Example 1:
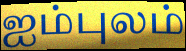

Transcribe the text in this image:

ஐம்புலம்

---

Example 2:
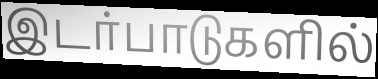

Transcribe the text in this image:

இடர்பாடுகளில்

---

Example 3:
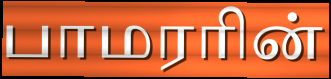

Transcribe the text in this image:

பாமரரின்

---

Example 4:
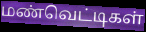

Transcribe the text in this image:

மண்வெட்டிகள்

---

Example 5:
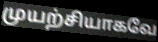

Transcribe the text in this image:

முயற்சியாகவே